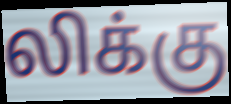
லிக்கு